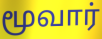
மூவார்